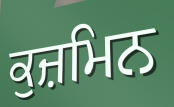
ਕੁਜ਼ਮਿਨ